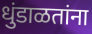
धुंडाळतांना